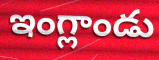
ఇంగ్లాండు